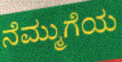
ನೆಮ್ಮುಗೆಯ